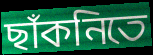
ছাঁকনিতে